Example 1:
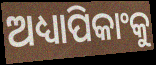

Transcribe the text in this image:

ଅଧ୍ୟାପିକାଂକୁ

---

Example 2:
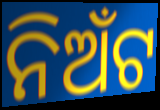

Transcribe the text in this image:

ନିଅଁଟ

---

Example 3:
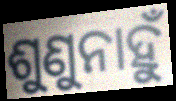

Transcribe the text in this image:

ଶୁଣୁନାହୁଁ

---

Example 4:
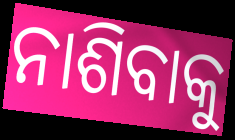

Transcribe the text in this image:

ନାଶିବାକୁ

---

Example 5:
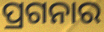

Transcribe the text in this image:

ପ୍ରଗନାର